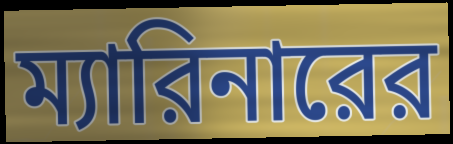
ম্যারিনারের